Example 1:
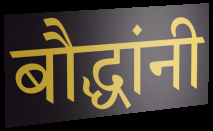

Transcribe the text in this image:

बौद्धांनी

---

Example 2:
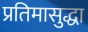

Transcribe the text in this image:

प्रतिमासुद्धा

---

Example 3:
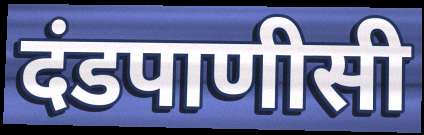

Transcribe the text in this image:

दंडपाणीसी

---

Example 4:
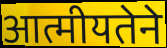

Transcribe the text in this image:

आत्मीयतेने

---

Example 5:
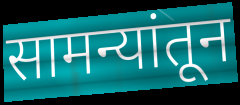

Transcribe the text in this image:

सामन्यांतून